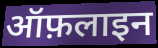
ऑफ़लाइन